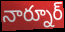
నార్నూర్